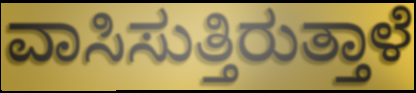
ವಾಸಿಸುತ್ತಿರುತ್ತಾಳೆ